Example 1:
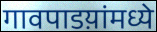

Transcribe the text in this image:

गावपाडय़ांमध्ये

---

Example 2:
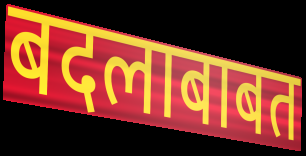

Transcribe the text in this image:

बदलाबाबत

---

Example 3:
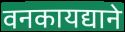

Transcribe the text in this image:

वनकायद्याने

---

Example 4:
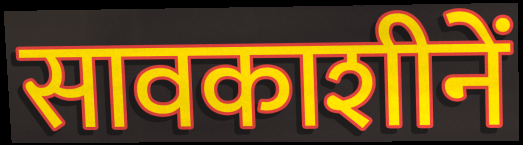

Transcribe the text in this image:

सावकाशीनें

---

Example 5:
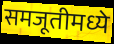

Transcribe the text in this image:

समजूतीमध्ये